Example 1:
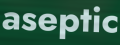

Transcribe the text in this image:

aseptic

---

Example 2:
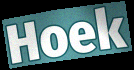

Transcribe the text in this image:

Hoek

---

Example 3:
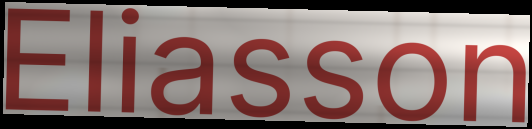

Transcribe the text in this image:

Eliasson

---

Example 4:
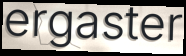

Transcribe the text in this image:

ergaster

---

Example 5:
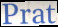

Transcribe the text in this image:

Prat